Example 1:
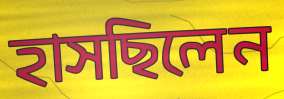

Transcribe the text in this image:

হাসছিলেন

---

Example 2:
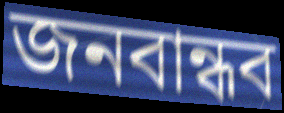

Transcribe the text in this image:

জনবান্ধব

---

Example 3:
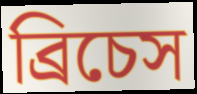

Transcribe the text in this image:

ব্রিচেস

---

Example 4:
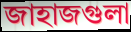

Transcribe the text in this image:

জাহাজগুলা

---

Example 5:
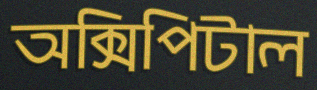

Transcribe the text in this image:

অক্সিপিটাল